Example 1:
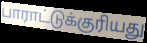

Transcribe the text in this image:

பாராட்டுக்குரியது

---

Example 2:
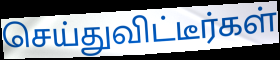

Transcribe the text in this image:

செய்துவிட்டீர்கள்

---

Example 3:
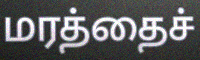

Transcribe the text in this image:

மரத்தைச்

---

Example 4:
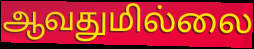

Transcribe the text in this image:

ஆவதுமில்லை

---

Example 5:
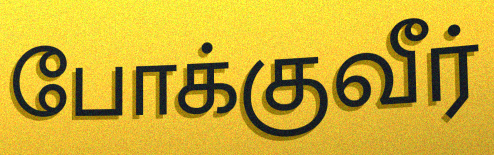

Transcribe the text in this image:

போக்குவீர்